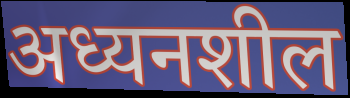
अध्यनशील